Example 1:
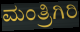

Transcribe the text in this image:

ಮಂತ್ರಿಗಿರಿ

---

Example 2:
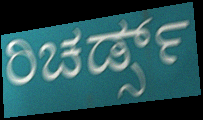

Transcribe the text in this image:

ರಿಚರ್ಡ್ಸ್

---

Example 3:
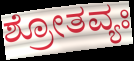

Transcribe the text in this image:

ಶ್ರೋತವ್ಯಃ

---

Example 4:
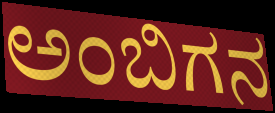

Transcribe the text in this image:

ಅಂಬಿಗನ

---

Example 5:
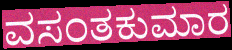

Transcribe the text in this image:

ವಸಂತಕುಮಾರ